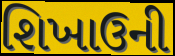
શિખાઉની